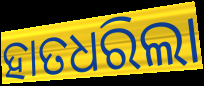
ହାତଧରିଲା